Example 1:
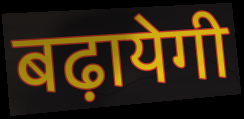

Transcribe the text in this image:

बढ़ायेगी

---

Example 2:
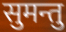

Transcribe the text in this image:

सुमन्तु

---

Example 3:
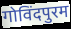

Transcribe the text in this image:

गोविंदपुरम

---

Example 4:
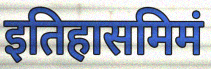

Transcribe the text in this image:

इतिहासमिमं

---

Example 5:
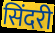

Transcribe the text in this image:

सिंदरी